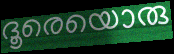
ദൂരെയൊരു